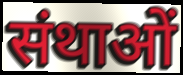
संथाओं